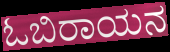
ಓಬಿರಾಯನ